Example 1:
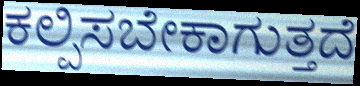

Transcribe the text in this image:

ಕಲ್ಪಿಸಬೇಕಾಗುತ್ತದೆ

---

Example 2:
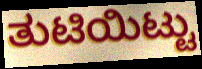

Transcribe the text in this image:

ತುಟಿಯಿಟ್ಟು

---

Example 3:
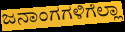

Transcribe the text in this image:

ಜನಾಂಗಗಳಿಗೆಲ್ಲಾ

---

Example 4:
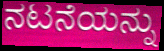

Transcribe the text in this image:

ನಟನೆಯನ್ನು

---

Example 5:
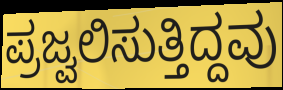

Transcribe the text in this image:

ಪ್ರಜ್ವಲಿಸುತ್ತಿದ್ದವು